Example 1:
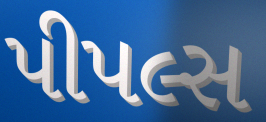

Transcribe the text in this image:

પીપલ્સ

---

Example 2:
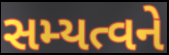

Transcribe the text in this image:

સમ્યત્વને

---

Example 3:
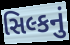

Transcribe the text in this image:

સિલ્કનું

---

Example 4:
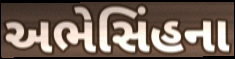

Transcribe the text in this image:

અભેસિંહના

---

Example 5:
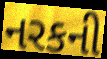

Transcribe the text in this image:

નરકની